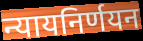
न्यायनिर्णयन